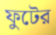
ফুটের